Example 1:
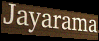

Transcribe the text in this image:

Jayarama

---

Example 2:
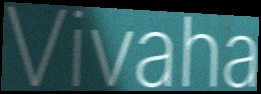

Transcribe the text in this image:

Vivaha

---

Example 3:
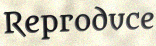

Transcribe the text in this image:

Reproduce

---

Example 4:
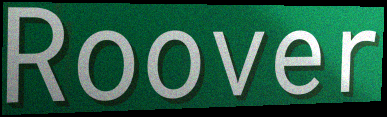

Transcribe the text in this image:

Roover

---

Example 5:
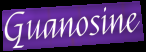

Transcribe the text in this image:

Guanosine